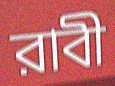
রাবী